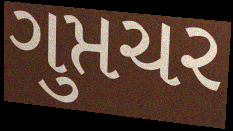
ગુપ્તચર